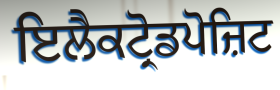
ਇਲੈਕਟ੍ਰੋਡਪੋਜ਼ਿਟ